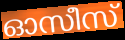
ഓസീസ്